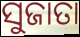
ସୁଜାତା